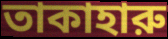
তাকাহারু